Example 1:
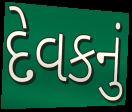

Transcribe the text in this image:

દેવકનું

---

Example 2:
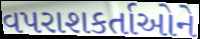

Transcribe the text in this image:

વપરાશકર્તાઓને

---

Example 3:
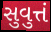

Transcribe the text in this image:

સુવુત્તં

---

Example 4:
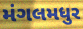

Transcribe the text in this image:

મંગલમધુર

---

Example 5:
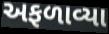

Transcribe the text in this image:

અફળાવ્યા